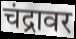
चंद्रावर